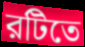
রটিতে